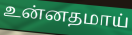
உன்னதமாய்